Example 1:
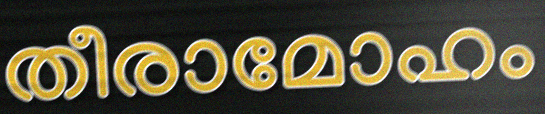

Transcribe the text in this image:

തീരാമോഹം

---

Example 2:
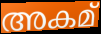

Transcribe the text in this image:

അകമ്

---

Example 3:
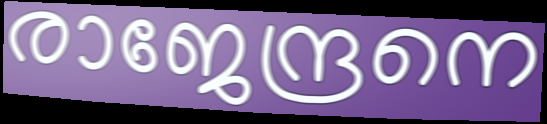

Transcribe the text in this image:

രാജേന്ദ്രനെ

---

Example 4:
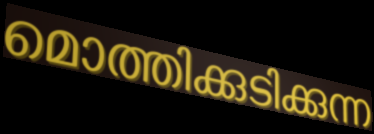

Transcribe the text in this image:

മൊത്തിക്കുടിക്കുന്ന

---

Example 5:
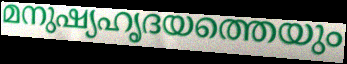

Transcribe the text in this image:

മനുഷ്യഹൃദയത്തെയും